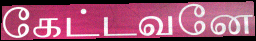
கேட்டவனே